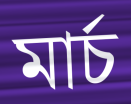
মাৰ্চ